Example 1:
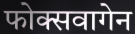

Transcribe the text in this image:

फोक्सवागेन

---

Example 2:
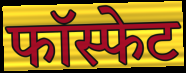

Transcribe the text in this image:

फॉस्फेट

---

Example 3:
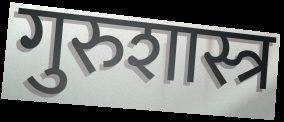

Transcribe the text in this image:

गुरुशास्त्र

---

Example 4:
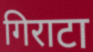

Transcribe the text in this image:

गिराटा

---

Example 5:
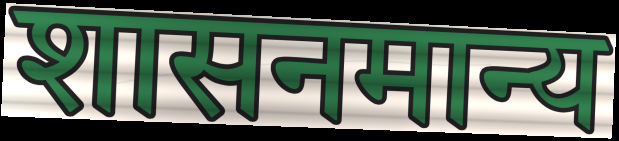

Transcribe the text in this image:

शासनमान्य